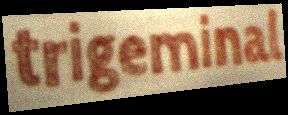
trigeminal